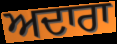
ਅਦਾਰਾ